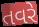
તવરે